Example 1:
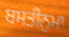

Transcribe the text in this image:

ਬਸਤੀਨੁਮਾ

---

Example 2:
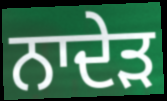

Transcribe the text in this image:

ਨਾਦੇੜ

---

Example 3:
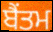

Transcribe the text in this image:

ਬੈਂਤਮ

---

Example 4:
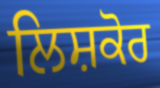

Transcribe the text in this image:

ਲਿਸ਼ਕੋਰ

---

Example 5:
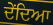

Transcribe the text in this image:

ਦੇਂਦਿਆ